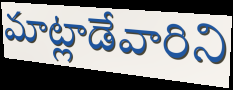
మాట్లాడేవారిని